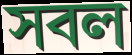
সবল